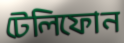
টেলিফোন